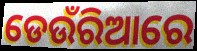
ଡେଉଁରିଆରେ